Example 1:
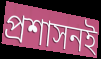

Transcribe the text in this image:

প্রশাসনই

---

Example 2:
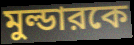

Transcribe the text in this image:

মুল্ডারকে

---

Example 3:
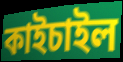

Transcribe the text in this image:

কাইচাইল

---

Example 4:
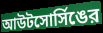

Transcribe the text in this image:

আউটসোর্সিঙের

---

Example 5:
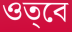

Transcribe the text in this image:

ওত্‌বে